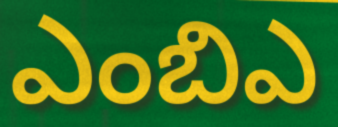
ఎంబిఎ